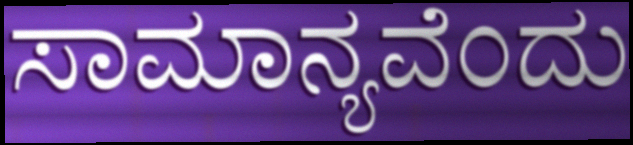
ಸಾಮಾನ್ಯವೆಂದು